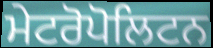
ਮੇਟਰੋਪੋਲਿਟਨ